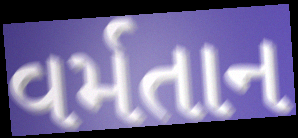
વર્મતાન